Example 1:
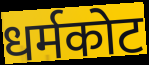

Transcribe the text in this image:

धर्मकोट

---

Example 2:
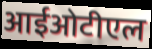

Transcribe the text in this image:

आईओटीएल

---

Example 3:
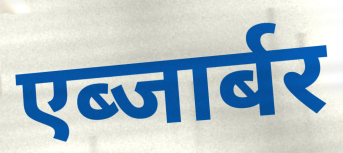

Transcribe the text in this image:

एब्जार्बर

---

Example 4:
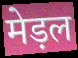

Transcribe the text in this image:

मेड़ल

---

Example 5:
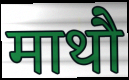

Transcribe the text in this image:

माथौ